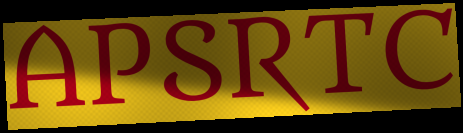
APSRTC